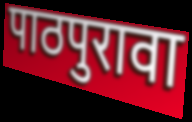
पाठपुरावा